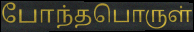
போந்தபொருள்